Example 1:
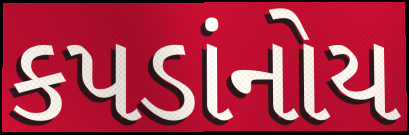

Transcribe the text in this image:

કપડાંનોય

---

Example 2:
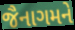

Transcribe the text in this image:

જૈનાગમને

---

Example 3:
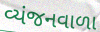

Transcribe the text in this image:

વ્યંજનવાળા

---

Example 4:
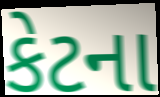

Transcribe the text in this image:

કેટના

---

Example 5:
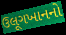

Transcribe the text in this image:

ઉલૂગખાનનો